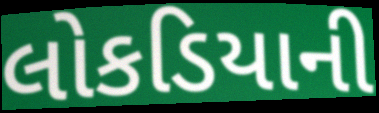
લોકડિયાની